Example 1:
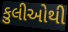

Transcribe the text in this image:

કુલીઓથી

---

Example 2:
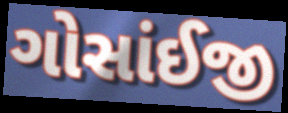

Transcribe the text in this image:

ગોસાંઈજી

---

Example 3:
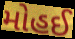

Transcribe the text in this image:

મોહઈ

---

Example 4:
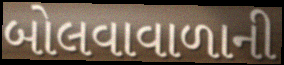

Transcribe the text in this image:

બોલવાવાળાની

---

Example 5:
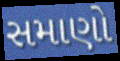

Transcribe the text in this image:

સમાણો